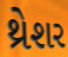
થ્રેશર